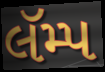
લૅમ્પ